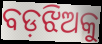
ବଡ଼ଝିଅକୁ